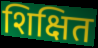
शिक्षित